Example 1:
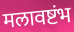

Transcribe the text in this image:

मलावष्टंभ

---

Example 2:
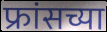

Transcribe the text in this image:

फ्रांसच्या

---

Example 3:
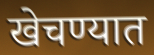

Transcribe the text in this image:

खेचण्यात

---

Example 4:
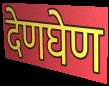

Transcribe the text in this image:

देणघेण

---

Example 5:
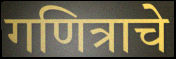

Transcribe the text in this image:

गणित्राचे